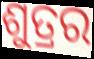
ଶୁତ୍ରର